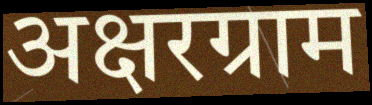
अक्षरग्राम